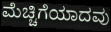
ಮೆಚ್ಚಿಗೆಯಾದವು